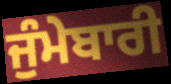
ਜੁੰਮੇਬਾਰੀ